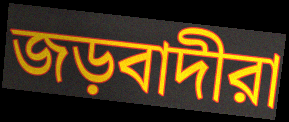
জড়বাদীরা